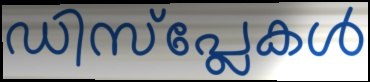
ഡിസ്പ്ലേകൾ